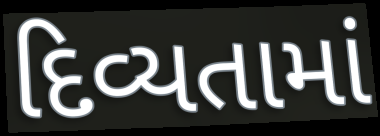
દિવ્યતામાં